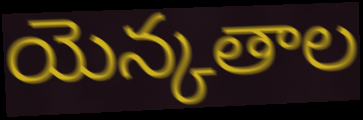
యెన్కతాల